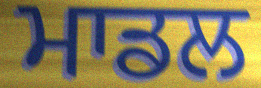
ਮਾਡਲ